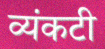
व्यंकटी